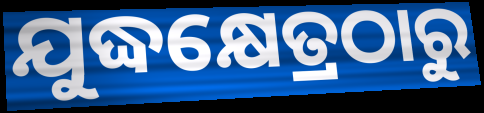
ଯୁଦ୍ଧକ୍ଷେତ୍ରଠାରୁ